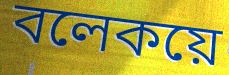
বলেকয়ে